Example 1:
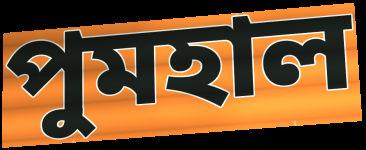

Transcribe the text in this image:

পুমহাল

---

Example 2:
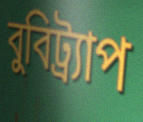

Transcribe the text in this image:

বুবিট্র্যাপ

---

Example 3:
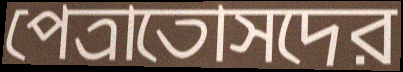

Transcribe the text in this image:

পেত্রাতোসদের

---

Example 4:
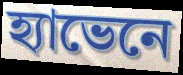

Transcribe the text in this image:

হ্যাভেনে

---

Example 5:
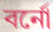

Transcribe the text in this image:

বর্নো